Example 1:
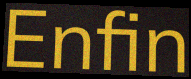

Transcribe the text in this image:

Enfin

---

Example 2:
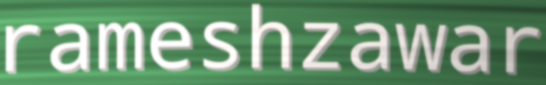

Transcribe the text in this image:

rameshzawar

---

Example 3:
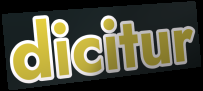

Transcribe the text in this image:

dicitur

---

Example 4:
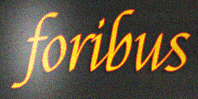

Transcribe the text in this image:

foribus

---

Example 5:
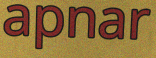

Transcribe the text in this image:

apnar